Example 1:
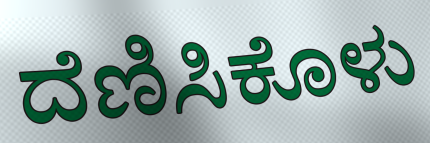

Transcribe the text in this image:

ದೆಣಿಸಿಕೊಳು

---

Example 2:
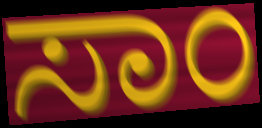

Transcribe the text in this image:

ಸಾಂ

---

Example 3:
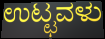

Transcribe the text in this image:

ಉಟ್ಟವಳು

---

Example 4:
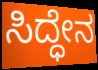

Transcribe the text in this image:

ಸಿದ್ಧೇನ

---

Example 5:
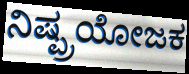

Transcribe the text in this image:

ನಿಷ್ಪ್ರಯೋಜಕ